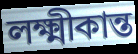
লক্ষ্মীকান্ত